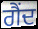
ਗੈਂਦ